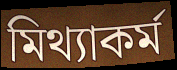
মিথ্যাকর্ম